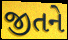
જીતને